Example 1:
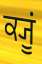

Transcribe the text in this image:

ਕ੍ਯੂਂ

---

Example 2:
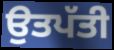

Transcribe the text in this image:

ਉਤਪੱਤੀ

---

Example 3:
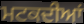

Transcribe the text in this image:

ਮਟਕਦੀਆਂ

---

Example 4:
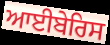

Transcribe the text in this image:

ਆਈਬੇਰਿਸ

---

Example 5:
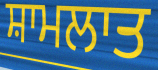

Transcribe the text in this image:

ਸ਼ਾਮਲਾਤ